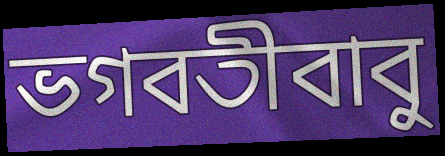
ভগবতীবাবু